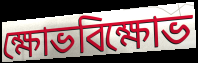
ক্ষোভবিক্ষোভ